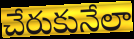
చేరుకునేలా